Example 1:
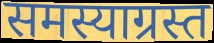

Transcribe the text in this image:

समस्याग्रस्त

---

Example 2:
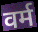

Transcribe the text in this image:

वर्म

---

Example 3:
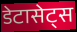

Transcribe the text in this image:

डेटासेट्स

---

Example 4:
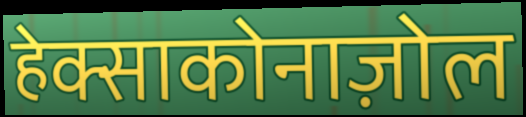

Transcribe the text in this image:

हेक्साकोनाज़ोल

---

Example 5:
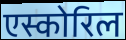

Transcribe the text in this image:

एस्कोरिल